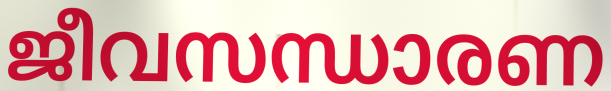
ജീവസന്ധാരണ